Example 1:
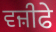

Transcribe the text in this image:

ਵਜ਼ੀਫੇ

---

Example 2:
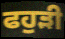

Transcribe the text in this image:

ਫਹੁੜੀ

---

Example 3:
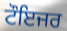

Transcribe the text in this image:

ਟੌਇਜਰ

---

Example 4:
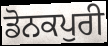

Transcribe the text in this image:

ਡੋਨਕਪੁਰੀ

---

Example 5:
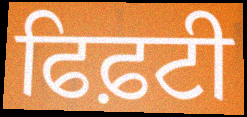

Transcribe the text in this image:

ਫਿਫ਼ਟੀ